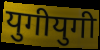
युगीयुगी